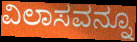
ವಿಲಾಸವನ್ನೂ